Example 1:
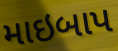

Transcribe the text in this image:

માઇબાપ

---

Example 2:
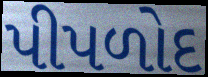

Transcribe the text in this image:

પીપળોદ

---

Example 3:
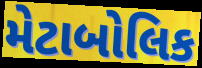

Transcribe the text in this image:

મેટાબોલિક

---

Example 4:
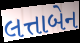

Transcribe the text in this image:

લત્તાબેન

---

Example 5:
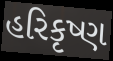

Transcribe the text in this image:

હરિકૃષ્ણ